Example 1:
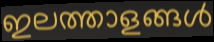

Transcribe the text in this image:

ഇലത്താളങ്ങൾ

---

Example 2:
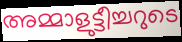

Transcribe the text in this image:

അമ്മാളുട്ടീച്ചറുടെ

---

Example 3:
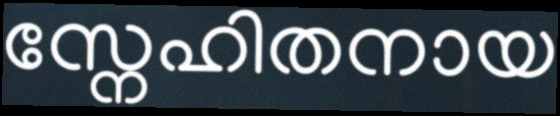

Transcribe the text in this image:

സ്നേഹിതനായ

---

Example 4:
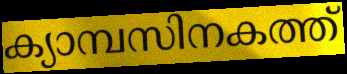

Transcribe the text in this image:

ക്യാമ്പസിനകത്ത്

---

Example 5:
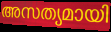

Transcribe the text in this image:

അസത്യമായി